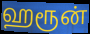
ஹரூன்